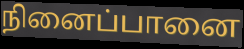
நினைப்பானை